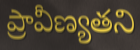
ప్రావీణ్యతని